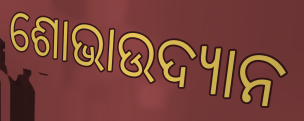
ଶୋଭାଉଦ୍ୟାନ